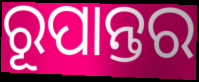
ରୂପାନ୍ତର